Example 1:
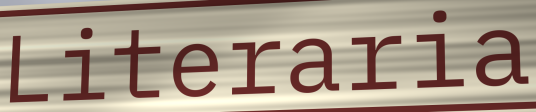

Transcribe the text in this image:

Literaria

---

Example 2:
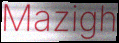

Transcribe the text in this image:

Mazigh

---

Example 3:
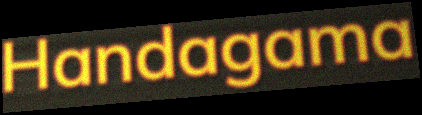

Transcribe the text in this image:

Handagama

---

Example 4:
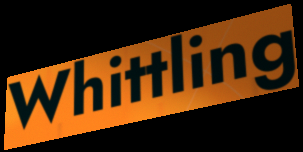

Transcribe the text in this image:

Whittling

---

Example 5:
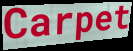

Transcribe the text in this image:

Carpet